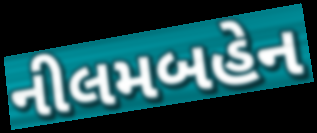
નીલમબહેન